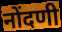
नोंदणी